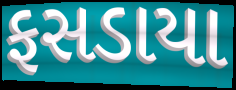
ફસડાયા